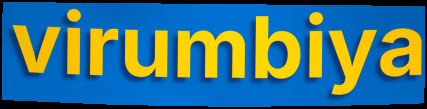
virumbiya